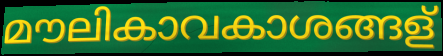
മൗലികാവകാശങ്ങള്